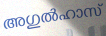
അഗുൽഹാസ്